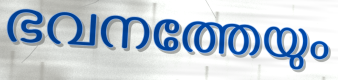
ഭവനത്തേയും